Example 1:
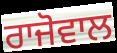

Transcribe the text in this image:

ਰਾਜੋਵਾਲ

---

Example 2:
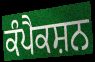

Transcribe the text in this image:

ਕੰਪੈਕਸ਼ਨ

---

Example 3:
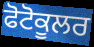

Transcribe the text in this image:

ਫੋਟੋਕੂਲਰ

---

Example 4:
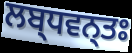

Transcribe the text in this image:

ਲਬ੍ਧਵਨ੍ਤਃ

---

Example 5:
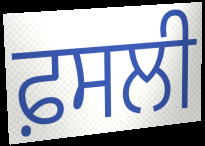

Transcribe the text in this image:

ਫ਼ਸਲੀ